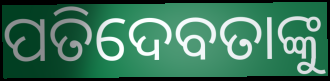
ପତିଦେବତାଙ୍କୁ